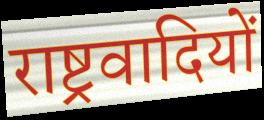
राष्ट्रवादियों